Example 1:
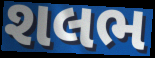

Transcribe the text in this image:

શલભ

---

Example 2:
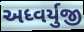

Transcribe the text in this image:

અધ્વર્યુજી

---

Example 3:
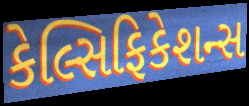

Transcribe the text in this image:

કેલ્સિફિકેશન્સ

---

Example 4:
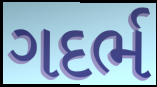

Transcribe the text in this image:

ગદર્ભ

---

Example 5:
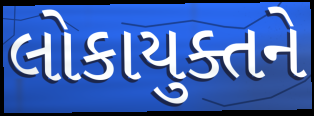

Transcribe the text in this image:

લોકાયુક્તને